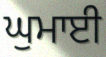
ਘੁਮਾਈ